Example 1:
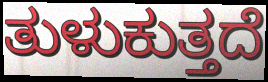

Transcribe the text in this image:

ತುಳುಕುತ್ತದೆ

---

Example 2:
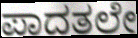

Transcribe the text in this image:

ಪಾದತಲೇ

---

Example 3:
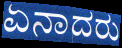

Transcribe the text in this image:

ಏನಾದರು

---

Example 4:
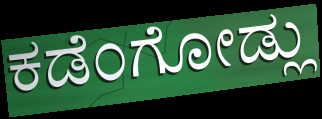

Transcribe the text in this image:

ಕಡೆಂಗೋಡ್ಲು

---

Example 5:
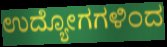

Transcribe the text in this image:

ಉದ್ಯೋಗಗಳಿಂದ